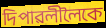
দিপাৱলীলৈকে